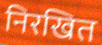
निरखित